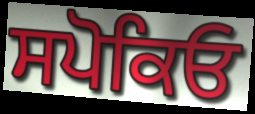
ਸਪੋਕਿਓ